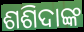
ଶଶିଦାଙ୍କ